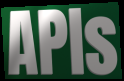
APIs